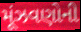
મૂંઝવણોની